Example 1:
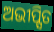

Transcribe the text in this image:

ଅଭୀପ୍ସିତ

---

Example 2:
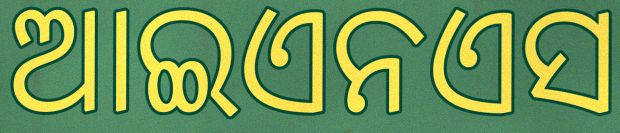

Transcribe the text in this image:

ଆଇଏନଏସ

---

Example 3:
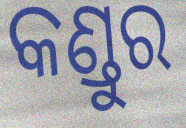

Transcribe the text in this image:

କଣ୍ଡୁର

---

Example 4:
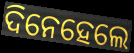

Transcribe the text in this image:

ଦିନେହେଲେ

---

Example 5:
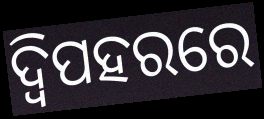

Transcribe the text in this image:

ଦ୍ୱିପହରରେ